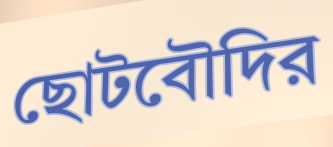
ছোটবৌদির